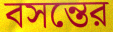
বসন্তের